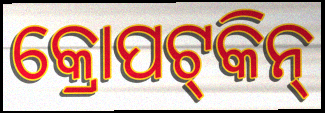
କ୍ରୋପଟ୍‍କିନ୍